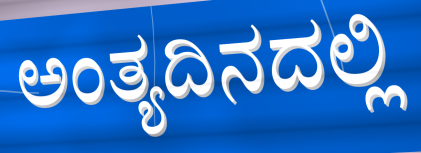
ಅಂತ್ಯದಿನದಲ್ಲಿ